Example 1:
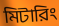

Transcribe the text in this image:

মিটারিং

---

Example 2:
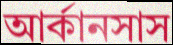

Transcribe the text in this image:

আর্কানসাস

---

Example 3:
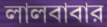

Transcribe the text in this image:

লালবাবার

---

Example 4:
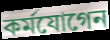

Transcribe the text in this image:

কর্মযোগেন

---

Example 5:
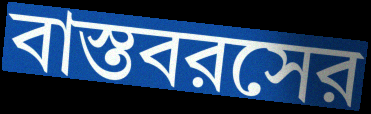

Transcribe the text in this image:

বাস্তবরসের